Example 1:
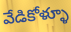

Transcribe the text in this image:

వేడికోళ్ళూ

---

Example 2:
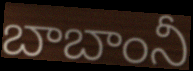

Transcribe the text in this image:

బాబాంనీ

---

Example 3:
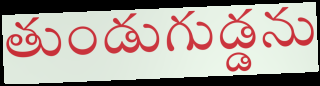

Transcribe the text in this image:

తుండుగుడ్డను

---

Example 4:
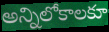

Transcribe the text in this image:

అన్నిలోకాలకూ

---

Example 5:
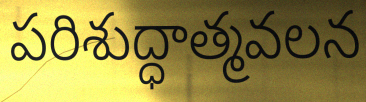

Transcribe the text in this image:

పరిశుద్ధాత్మవలన